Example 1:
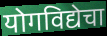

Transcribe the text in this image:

योगविद्येचा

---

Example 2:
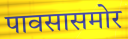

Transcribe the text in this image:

पावसासमोर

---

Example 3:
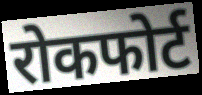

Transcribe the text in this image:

रोकफोर्ट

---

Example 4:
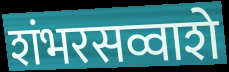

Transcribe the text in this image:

शंभरसव्वाशे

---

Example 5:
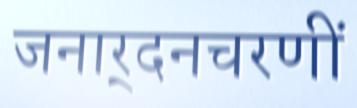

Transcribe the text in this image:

जनार्दनचरणीं